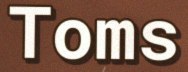
Toms